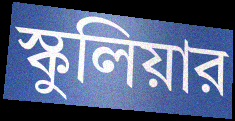
স্কুলিয়ার